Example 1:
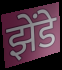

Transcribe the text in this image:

झेंडे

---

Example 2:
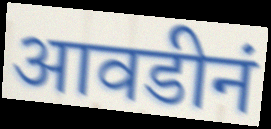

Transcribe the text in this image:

आवडीनं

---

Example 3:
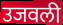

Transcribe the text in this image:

उजवली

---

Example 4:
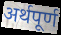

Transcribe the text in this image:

अर्थपूर्ण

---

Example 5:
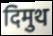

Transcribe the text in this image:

दिमुथ